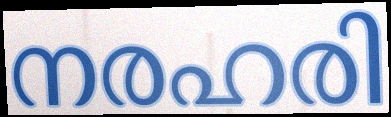
നരഹരി